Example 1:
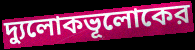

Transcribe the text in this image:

দ্যুলোকভূলোকের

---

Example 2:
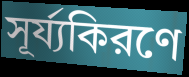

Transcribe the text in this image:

সূর্য্যকিরণে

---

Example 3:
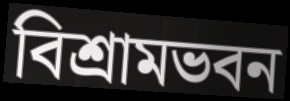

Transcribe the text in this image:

বিশ্রামভবন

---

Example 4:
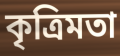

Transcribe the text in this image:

কৃত্রিমতা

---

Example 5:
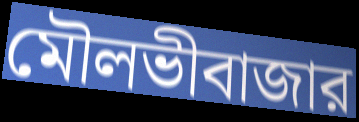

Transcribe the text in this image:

মৌলভীবাজার